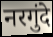
नरगुंदे